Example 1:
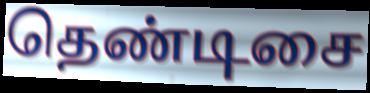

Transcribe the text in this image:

தெண்டிசை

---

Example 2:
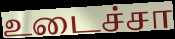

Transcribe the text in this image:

உடைச்சா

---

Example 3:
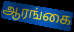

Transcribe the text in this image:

ஆரங்கை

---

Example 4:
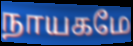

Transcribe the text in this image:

நாயகமே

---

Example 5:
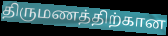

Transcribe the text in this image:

திருமணத்திற்கான